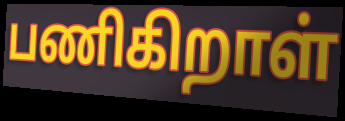
பணிகிறாள்